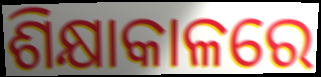
ଶିକ୍ଷାକାଳରେ